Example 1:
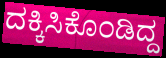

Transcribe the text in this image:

ದಕ್ಕಿಸಿಕೊಂಡಿದ್ದ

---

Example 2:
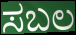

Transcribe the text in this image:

ಸಬಲ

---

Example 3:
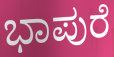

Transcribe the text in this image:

ಭಾಪುರೆ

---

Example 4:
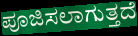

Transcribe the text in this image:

ಪೂಜಿಸಲಾಗುತ್ತದೆ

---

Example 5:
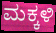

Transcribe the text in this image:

ಮಕ್ಕಳಿ